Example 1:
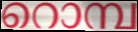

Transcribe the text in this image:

റൊമ്പ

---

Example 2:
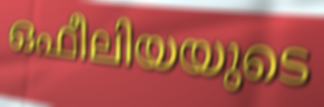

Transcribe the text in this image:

ഒഫീലിയയുടെ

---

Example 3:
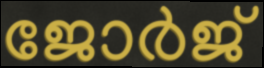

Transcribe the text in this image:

ജോർജ്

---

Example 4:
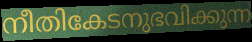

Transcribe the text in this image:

നീതികേടനുഭവിക്കുന്ന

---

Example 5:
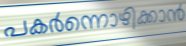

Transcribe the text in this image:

പകർന്നൊഴിക്കാൻ